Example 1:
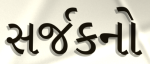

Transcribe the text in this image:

સર્જકનો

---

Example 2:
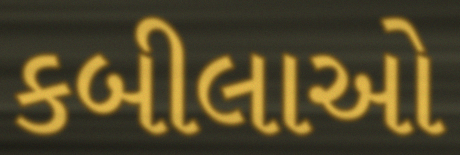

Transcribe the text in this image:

કબીલાઓ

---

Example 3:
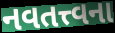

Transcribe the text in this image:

નવતત્ત્વના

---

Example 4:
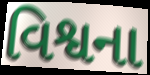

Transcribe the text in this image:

વિશ્વના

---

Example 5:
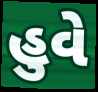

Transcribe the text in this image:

હુવે